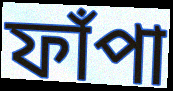
ফাঁপা